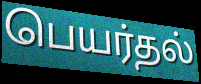
பெயர்தல்